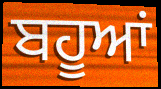
ਬਹੂਆਂ